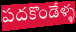
పదకొండేళ్ళ